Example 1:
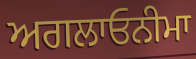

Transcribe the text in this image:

ਅਗਲਾਓਨੀਮਾ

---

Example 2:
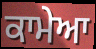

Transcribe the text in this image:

ਕਾਮੇਆ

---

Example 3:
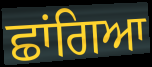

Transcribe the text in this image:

ਛਾਂਗਿਆ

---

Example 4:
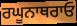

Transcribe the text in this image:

ਰਘੂਨਾਥਰਾਓ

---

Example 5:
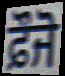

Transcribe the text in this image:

ਫ਼ੌਜੋ